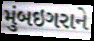
મુંબઇગરાને